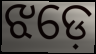
ଝଡ଼େ